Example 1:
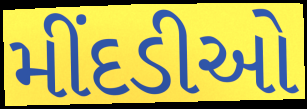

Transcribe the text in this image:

મીંદડીઓ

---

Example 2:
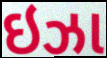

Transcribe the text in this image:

ઇઝા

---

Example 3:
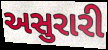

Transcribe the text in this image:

અસુરારી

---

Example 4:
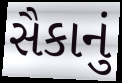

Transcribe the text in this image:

સૈકાનું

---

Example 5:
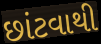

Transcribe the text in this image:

છાંટવાથી